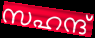
സഹന്ദ്